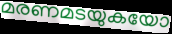
മരണമടയുകയോ